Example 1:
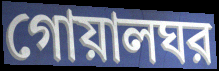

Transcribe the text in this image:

গোয়ালঘর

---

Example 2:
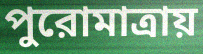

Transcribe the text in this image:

পুরোমাত্রায়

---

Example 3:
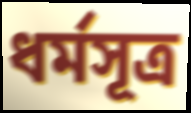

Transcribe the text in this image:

ধর্মসূত্র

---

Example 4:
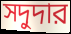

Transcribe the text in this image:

সদুদার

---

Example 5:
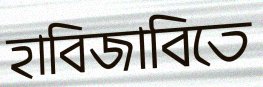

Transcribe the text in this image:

হাবিজাবিতে